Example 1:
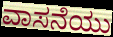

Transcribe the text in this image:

ವಾಸನೆಯು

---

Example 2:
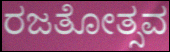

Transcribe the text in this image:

ರಜತೋತ್ಸವ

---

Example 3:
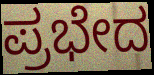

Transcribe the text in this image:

ಪ್ರಭೇದ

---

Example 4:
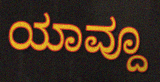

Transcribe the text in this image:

ಯಾವ್ದೂ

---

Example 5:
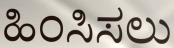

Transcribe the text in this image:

ಹಿಂಸಿಸಲು